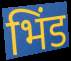
भिंड